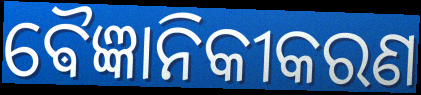
ଵୈଜ୍ଞାନିକୀକରଣ